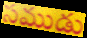
సముడు